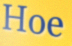
Hoe